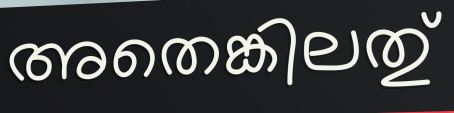
അതെങ്കിലതു്